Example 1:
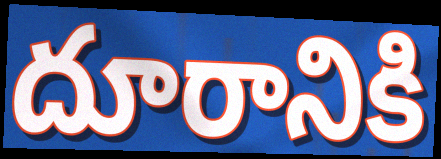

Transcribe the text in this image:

దూరానికి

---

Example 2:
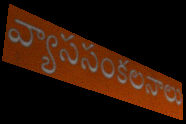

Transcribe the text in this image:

వ్యాససంకలనాలు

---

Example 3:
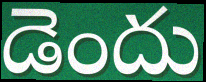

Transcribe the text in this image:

డెందు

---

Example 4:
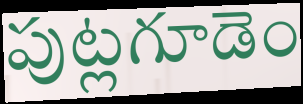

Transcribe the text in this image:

పుట్లగూడెం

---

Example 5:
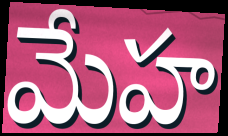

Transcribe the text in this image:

మేహ